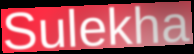
Sulekha